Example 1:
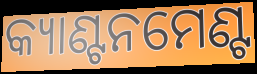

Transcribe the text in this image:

କ୍ୟାଣ୍ଟନମେଣ୍ଟ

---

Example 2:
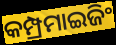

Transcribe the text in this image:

କମ୍ପ୍ରମାଇଜିଂ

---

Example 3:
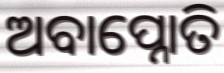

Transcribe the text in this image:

ଅବାପ୍ନୋତି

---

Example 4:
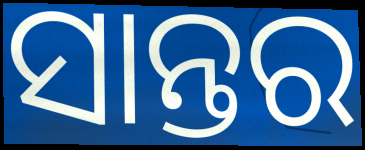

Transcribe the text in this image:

ସାନ୍ତର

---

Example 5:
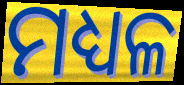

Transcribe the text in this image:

ମଧ୍ୟଳ